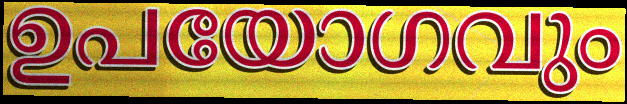
ഉപയോഗവും